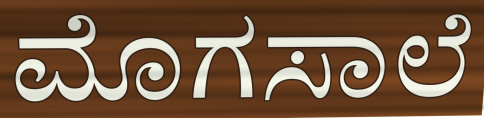
ಮೊಗಸಾಲೆ